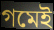
গমেই